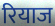
रियाज